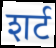
शर्ट